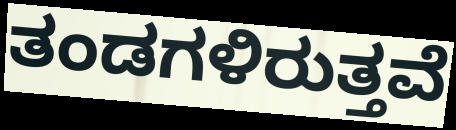
ತಂಡಗಳಿರುತ್ತವೆ